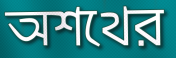
অশথের